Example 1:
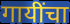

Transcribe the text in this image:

गायींचा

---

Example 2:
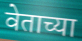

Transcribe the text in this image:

वेताच्या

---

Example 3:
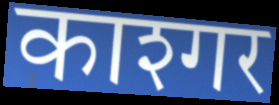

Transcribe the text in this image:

काश्गर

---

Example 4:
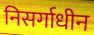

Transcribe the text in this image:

निसर्गाधीन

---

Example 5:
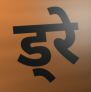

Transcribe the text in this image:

ड्रे